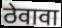
ठेवावा